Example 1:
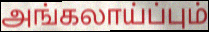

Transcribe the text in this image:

அங்கலாய்ப்பும்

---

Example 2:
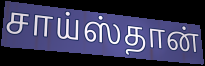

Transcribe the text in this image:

சாய்ஸ்தான்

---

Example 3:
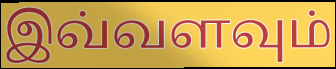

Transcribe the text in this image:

இவ்வளவும்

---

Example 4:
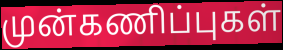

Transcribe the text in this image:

முன்கணிப்புகள்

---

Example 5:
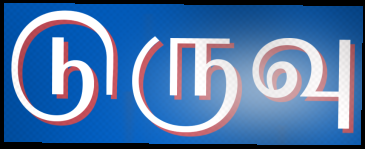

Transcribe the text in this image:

டுருவு